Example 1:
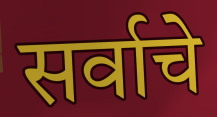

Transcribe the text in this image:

सर्वाचे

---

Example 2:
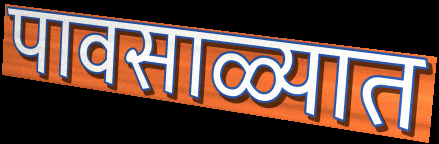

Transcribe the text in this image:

पावसाळ्यात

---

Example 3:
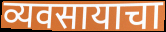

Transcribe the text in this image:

व्यवसायाचा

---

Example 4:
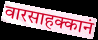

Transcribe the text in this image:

वारसाहक्कानं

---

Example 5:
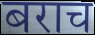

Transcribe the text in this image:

बराच